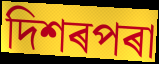
দিশৰপৰা